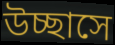
উচ্ছাসে